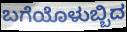
ಬಗೆಯೊಳುಬ್ಬಿದ